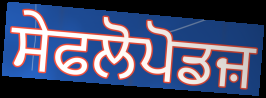
ਸੇਫਲੋਪੋਡਜ਼